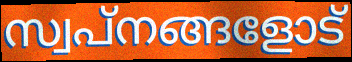
സ്വപ്നങ്ങളോട്